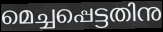
മെച്ചപ്പെട്ടതിനു